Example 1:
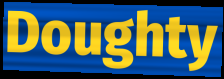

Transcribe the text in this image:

Doughty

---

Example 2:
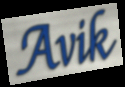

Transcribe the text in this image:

Avik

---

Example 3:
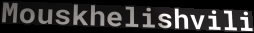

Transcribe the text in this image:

Mouskhelishvili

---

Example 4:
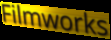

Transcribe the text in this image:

Filmworks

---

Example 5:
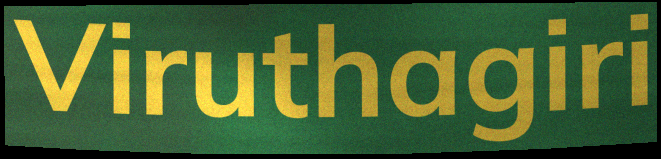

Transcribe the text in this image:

Viruthagiri